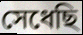
সেধেছি